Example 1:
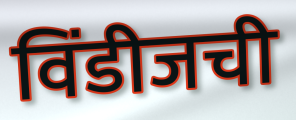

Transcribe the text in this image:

विंडीजची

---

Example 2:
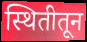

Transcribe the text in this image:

स्थितीतून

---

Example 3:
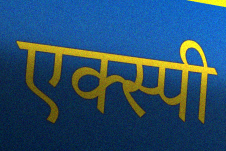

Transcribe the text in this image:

एक्स्पी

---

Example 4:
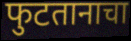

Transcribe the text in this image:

फुटतानाचा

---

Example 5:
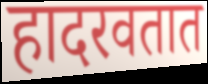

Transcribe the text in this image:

हादरवतात